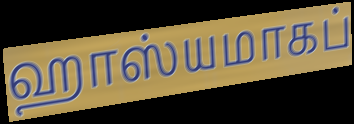
ஹாஸ்யமாகப்